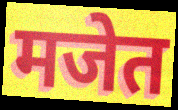
मजेत